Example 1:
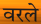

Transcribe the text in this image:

वरले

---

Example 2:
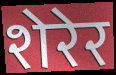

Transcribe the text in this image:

शेरेर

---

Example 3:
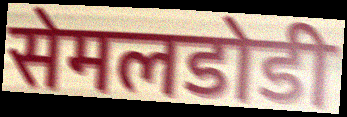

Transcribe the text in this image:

सेमलडोडी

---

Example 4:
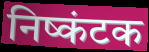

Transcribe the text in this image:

निष्कंटक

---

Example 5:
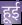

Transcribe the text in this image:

हूई